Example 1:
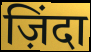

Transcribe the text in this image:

ज़िंदा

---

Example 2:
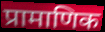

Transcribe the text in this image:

प्रामाणिक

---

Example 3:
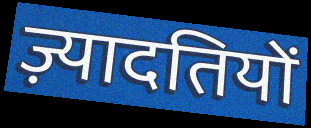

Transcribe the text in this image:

ज़्यादतियों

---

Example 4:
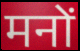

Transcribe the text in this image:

मनों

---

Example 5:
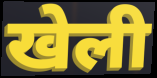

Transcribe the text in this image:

खेली